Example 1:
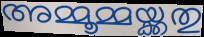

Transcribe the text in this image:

അമ്മൂമ്മയ്ക്കതു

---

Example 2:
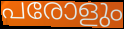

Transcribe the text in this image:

പരോളും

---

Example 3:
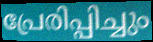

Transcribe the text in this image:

പ്രേരിപ്പിച്ചും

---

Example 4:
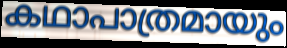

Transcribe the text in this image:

കഥാപാത്രമായും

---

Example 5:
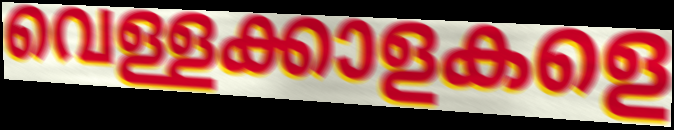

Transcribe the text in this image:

വെള്ളക്കാളകളെ